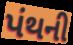
પંથની